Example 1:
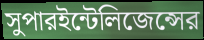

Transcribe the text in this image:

সুপারইন্টেলিজেন্সের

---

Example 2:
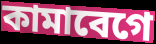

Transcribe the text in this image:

কামাবেগে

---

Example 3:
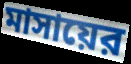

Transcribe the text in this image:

মাসায়ের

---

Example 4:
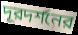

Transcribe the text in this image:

দূরদর্শনের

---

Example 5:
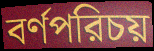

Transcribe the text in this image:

বর্ণপরিচয়